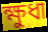
ক্ষুধা